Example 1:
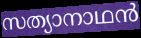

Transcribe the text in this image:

സത്യാനാഥൻ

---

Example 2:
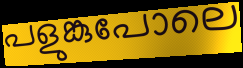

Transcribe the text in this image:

പളുങ്കുപോലെ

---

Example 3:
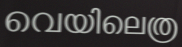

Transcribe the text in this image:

വെയിലെത്ര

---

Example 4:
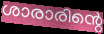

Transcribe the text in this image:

ശാരാരിന്റെ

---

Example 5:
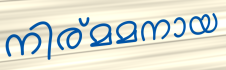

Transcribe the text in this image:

നിര്മമനായ